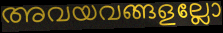
അവയവങ്ങളല്ലോ